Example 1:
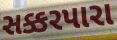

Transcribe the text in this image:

સક્કરપારા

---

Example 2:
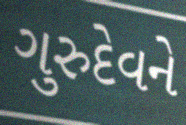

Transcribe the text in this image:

ગુરુદેવને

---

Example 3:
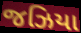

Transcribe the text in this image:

જઝિયા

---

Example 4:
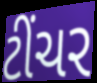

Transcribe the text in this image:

ટીંચર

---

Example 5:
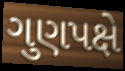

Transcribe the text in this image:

ગુણપક્ષે